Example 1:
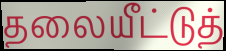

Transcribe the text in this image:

தலையீட்டுத்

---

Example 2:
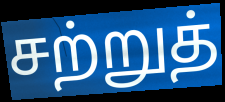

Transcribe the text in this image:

சற்றுத்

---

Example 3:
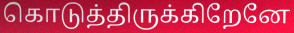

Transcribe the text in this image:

கொடுத்திருக்கிறேனே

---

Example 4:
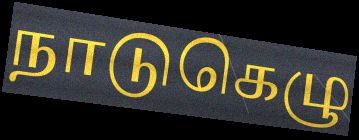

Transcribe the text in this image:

நாடுகெழு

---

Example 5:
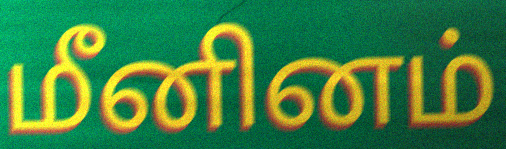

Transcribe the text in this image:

மீனினம்